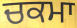
ਚਕਮਾ